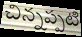
చిన్నప్పటి